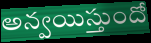
అన్వయిస్తుందో